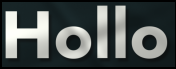
Hollo